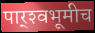
पार्श्वभूमीच